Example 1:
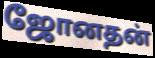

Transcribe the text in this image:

ஜோனதன்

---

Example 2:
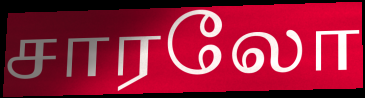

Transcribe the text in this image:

சாரலோ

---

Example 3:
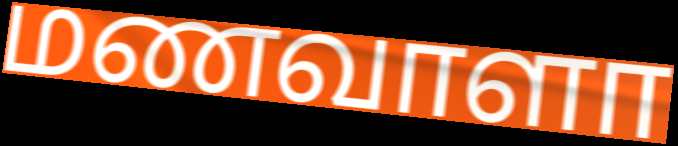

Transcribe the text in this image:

மணவாளா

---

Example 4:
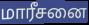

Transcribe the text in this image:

மாரீசனை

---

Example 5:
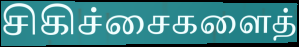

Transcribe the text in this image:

சிகிச்சைகளைத்